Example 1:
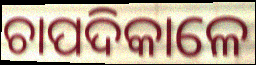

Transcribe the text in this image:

ଚାପଦିକାଳେ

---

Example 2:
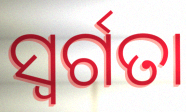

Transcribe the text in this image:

ସ୍ୱର୍ଗତା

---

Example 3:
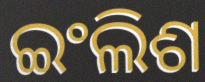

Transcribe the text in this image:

ଇଂଲିଶ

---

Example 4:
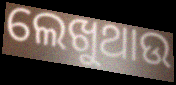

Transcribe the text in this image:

ଲେଖୁଥାଉ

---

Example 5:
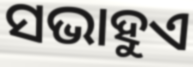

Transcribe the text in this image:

ସଭାହୁଏ